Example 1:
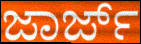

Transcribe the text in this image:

ಜಾರ್ಜ್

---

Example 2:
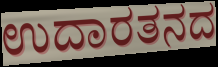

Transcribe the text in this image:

ಉದಾರತನದ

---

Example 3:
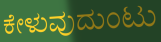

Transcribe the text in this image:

ಕೇಳುವುದುಂಟು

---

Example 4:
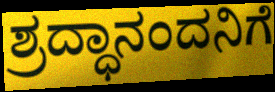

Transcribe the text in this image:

ಶ್ರದ್ಧಾನಂದನಿಗೆ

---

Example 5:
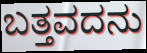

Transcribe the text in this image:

ಬತ್ತವದನು